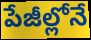
పేజీల్లోనే